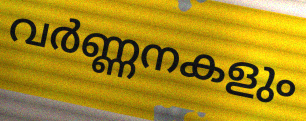
വർണ്ണനകളും